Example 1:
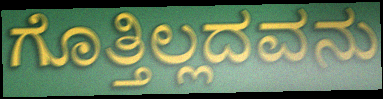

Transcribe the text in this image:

ಗೊತ್ತಿಲ್ಲದವನು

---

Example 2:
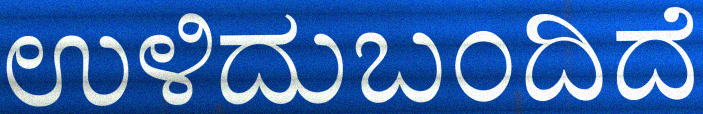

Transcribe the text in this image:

ಉಳಿದುಬಂದಿದೆ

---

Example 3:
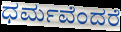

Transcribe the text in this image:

ಧರ್ಮವೆಂದರೆ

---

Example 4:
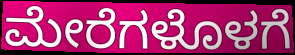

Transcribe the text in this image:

ಮೇರೆಗಳೊಳಗೆ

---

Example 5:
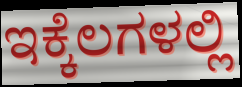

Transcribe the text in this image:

ಇಕ್ಕೆಲಗಳಲ್ಲಿ